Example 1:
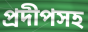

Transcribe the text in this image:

প্রদীপসহ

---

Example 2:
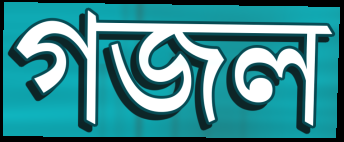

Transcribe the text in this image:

গজল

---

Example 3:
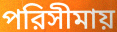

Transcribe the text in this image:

পরিসীমায়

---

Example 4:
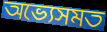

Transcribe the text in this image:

অভ্যেসমত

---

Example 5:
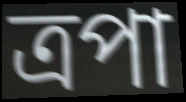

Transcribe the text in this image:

ত্রপা